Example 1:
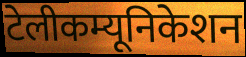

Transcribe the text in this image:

टेलीकम्‍यूनिकेशन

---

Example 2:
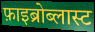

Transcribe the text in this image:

फ़ाइब्रोब्लास्ट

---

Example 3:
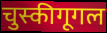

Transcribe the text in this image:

चुस्कीगूगल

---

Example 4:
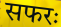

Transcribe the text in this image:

सफरः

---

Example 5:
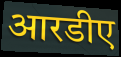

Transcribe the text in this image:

आरडीए